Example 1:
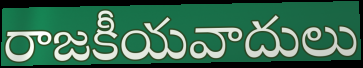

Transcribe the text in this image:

రాజకీయవాదులు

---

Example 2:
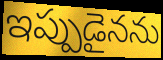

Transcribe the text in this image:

ఇప్పుడైనను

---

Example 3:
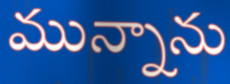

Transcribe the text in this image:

మున్నాను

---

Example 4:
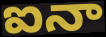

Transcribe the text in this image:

ఐనా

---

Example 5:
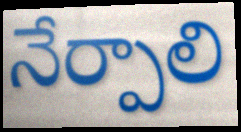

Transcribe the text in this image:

నేర్పాలి